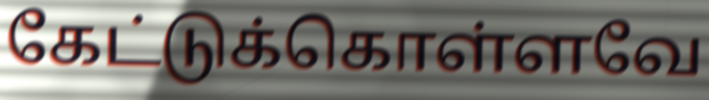
கேட்டுக்கொள்ளவே